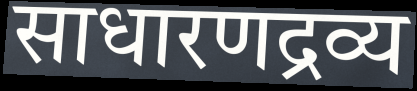
साधारणद्रव्य